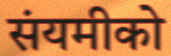
संयमीको